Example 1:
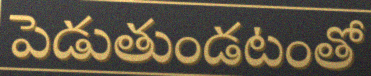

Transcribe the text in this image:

పెడుతుండటంతో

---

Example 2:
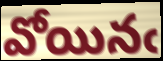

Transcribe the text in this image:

వోయినఁ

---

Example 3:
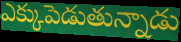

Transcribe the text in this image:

ఎక్కుపెడుతున్నాడు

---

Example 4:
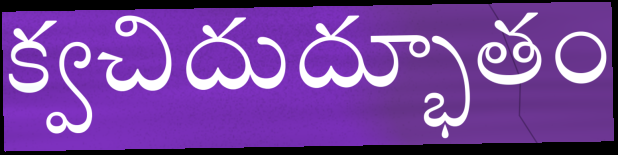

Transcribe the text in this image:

క్వచిదుద్భూతం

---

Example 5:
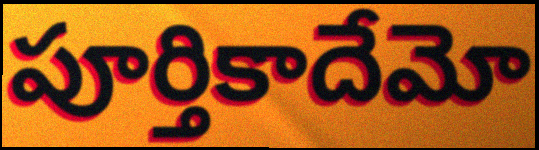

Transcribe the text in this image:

పూర్తికాదేమో